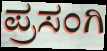
ಪ್ರಸಂಗಿ